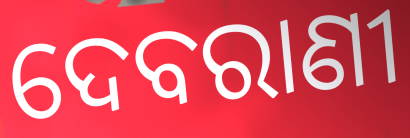
ଦେବରାଣୀ